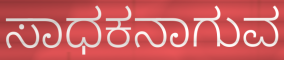
ಸಾಧಕನಾಗುವ